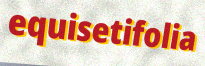
equisetifolia